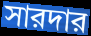
সারদার